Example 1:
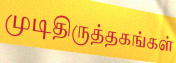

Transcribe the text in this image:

முடிதிருத்தகங்கள்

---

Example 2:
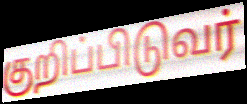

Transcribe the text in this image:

குறிப்பிடுவர்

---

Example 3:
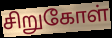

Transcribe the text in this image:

சிறுகோள்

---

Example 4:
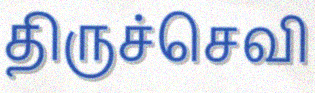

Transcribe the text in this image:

திருச்செவி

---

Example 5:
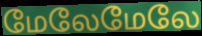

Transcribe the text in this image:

மேலேமேலே